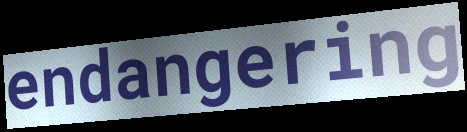
endangering